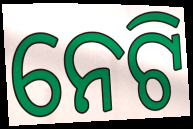
ନେଟି